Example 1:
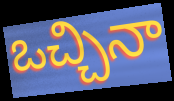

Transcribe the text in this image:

ఒచ్చినా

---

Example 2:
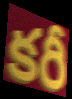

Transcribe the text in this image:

కరీ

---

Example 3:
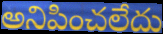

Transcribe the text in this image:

అనిపించలేదు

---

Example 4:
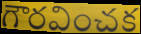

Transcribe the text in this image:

గౌరవించక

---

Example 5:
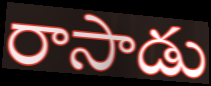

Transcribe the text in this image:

రాసాడు